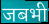
जबभी